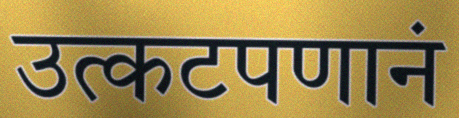
उत्कटपणानं